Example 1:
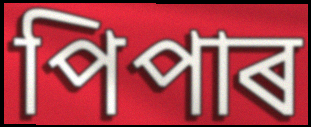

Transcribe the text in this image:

পিপাৰ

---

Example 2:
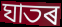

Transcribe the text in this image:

ঘাতৰ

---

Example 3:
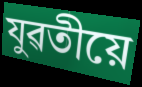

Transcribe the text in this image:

যুৱতীয়ে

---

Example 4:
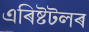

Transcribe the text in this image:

এৰিষ্টটলৰ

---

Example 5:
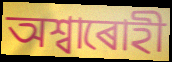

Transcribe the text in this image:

অশ্বাৰোহী